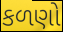
કળણો